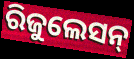
ରିଜୁଲେସନ୍